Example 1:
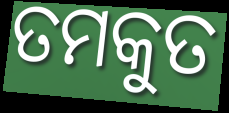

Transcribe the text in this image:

ତମକୁତ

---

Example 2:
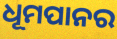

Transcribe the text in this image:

ଧୂମପାନର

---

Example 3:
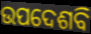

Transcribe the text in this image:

ଉପଦେଶବି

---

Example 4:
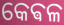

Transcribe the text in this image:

କେଵଳ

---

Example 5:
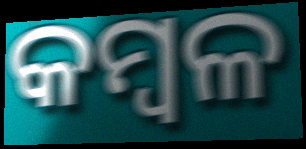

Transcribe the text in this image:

କମ୍ବଳ